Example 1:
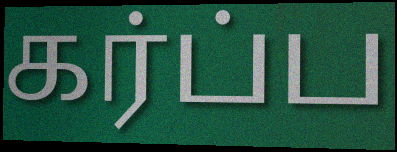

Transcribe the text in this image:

கர்ப்ப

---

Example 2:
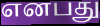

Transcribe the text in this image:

எனபது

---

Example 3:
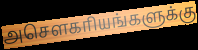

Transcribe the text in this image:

அசௌகரியங்களுக்கு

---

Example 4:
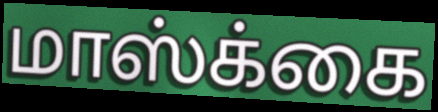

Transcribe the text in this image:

மாஸ்க்கை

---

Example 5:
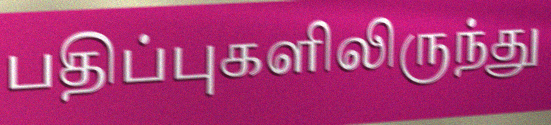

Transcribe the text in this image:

பதிப்புகளிலிருந்து